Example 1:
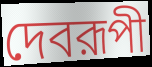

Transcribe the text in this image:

দেবরূপী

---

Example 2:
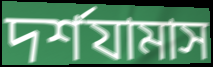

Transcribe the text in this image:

দর্শযামাস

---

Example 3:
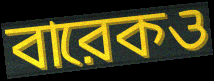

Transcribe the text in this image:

বারেকও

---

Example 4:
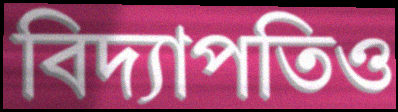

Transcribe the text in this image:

বিদ্যাপতিও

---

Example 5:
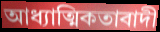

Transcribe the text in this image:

আধ্যাত্মিকতাবাদী